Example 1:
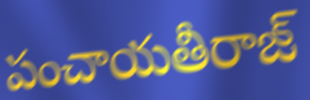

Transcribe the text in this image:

పంచాయతీరాజ్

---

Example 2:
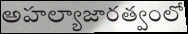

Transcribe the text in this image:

అహల్యాజారత్వంలో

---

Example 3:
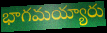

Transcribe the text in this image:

భాగమయ్యారు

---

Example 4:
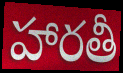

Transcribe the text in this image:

హారతీ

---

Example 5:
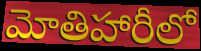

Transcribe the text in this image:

మోతిహారీలో